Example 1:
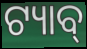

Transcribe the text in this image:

ଟ୍ୟାବ୍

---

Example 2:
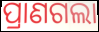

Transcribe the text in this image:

ପ୍ରାଣଗଲା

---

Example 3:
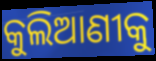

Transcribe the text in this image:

କୁଲିଆଣୀକୁ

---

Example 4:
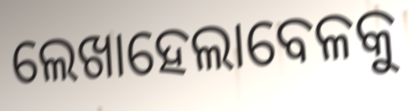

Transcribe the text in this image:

ଲେଖାହେଲାବେଳକୁ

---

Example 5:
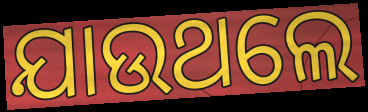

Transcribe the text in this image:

ଯାଉଥଲେ